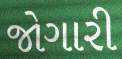
જોગારી